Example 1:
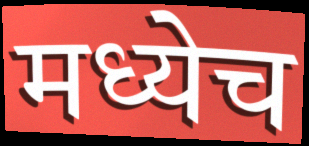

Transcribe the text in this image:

मध्‍येच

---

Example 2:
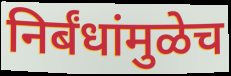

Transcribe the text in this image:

निर्बंधांमुळेच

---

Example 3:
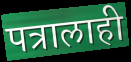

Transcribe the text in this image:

पत्रालाही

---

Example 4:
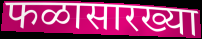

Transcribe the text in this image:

फळासारख्या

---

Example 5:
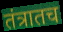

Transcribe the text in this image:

तंत्रातच